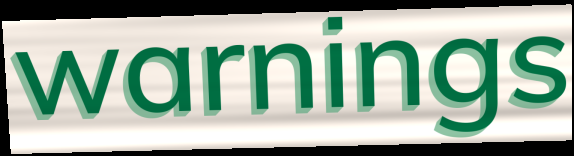
warnings